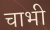
चाभी